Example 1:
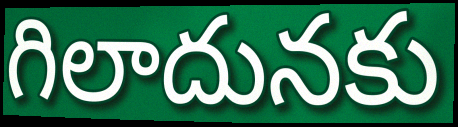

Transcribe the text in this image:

గిలాదునకు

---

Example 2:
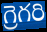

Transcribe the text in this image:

గ్రెగరి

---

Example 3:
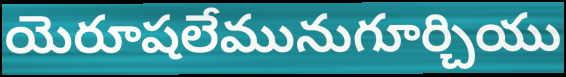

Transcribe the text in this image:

యెరూషలేమునుగూర్చియు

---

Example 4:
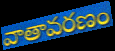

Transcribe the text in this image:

వాతావరణం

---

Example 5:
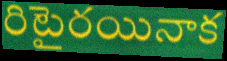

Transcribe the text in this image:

రిటైరయినాక